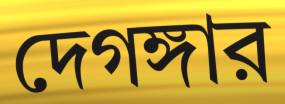
দেগঙ্গার